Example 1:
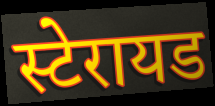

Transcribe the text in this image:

स्टेरायड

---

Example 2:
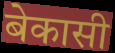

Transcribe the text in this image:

बेकासी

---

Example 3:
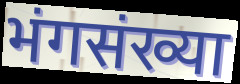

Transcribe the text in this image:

भंगसंख्या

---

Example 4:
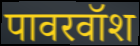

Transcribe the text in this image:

पावरवॉश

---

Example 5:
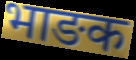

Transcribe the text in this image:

भाङक